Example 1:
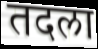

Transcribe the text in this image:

तदला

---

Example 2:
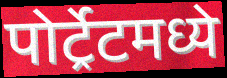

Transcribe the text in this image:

पोर्ट्रेटमध्ये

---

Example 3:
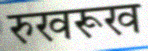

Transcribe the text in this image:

रुखरूख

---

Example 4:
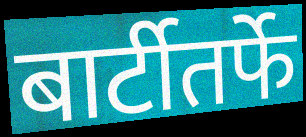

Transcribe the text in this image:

बार्टीतर्फे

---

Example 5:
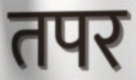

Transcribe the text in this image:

तपर